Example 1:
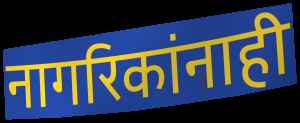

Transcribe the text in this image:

नागरिकांनाही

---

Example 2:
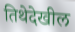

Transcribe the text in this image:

तिथेदेखील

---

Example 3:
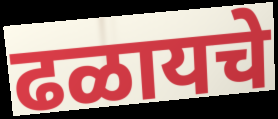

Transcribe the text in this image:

ढळायचे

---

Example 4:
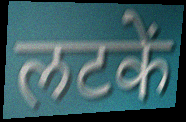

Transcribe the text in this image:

लटकें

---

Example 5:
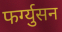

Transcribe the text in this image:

फर्ग्युसन